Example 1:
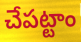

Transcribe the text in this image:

చేపట్టాం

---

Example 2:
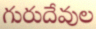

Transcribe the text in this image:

గురుదేవుల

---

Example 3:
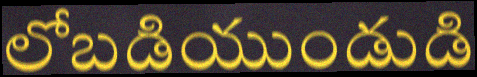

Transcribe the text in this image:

లోబడియుండుడి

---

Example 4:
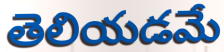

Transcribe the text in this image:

తెలియడమే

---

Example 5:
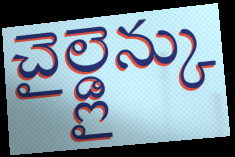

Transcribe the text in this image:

చైల్డ్లైన్కు